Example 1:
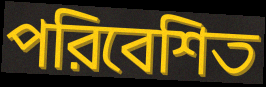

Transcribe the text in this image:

পরিবেশিত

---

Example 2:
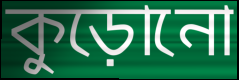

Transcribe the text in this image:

কুড়োনো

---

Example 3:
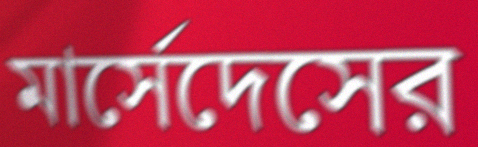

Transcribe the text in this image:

মার্সেদেসের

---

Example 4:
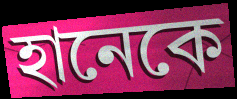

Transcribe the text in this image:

হানেকে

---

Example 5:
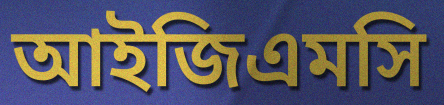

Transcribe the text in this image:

আইজিএমসি